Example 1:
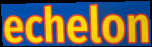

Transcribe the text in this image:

echelon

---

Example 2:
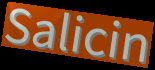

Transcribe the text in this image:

Salicin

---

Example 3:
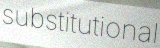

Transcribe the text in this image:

substitutional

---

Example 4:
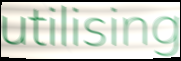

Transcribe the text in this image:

utilising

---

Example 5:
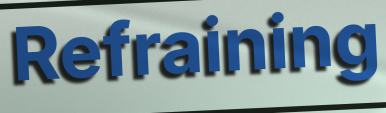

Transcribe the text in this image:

Refraining